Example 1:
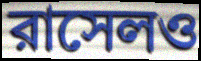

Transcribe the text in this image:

রাসেলও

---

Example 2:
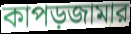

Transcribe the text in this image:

কাপড়জামার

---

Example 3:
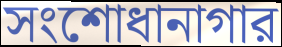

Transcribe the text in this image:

সংশোধানাগার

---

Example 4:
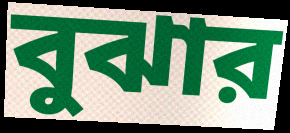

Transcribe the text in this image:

বুঝার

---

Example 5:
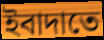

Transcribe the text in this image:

ইবাদাতে